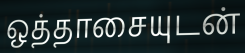
ஒத்தாசையுடன்